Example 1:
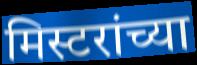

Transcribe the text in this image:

मिस्टरांच्या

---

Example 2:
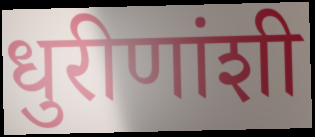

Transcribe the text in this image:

धुरीणांशी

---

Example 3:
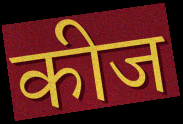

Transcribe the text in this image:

कीज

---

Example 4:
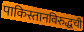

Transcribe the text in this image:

पाकिस्तानविरुद्धची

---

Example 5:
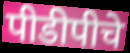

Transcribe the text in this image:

पीडीपीचे